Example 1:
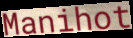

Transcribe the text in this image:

Manihot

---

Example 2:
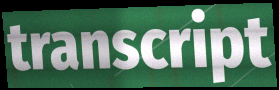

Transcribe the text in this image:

transcript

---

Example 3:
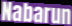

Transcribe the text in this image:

Nabarun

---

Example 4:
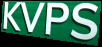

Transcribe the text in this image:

KVPS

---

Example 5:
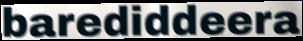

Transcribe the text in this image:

barediddeera